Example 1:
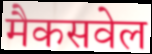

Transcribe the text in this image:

मैकसवेल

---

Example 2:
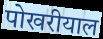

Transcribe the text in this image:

पोखरीयाल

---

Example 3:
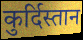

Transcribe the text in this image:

कुर्दिस्तान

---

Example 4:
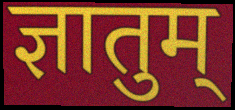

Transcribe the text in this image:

ज्ञातुम्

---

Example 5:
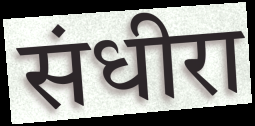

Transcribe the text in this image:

संधीरा